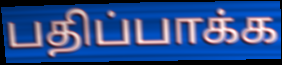
பதிப்பாக்க